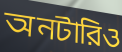
অনটারিও